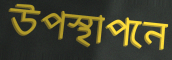
উপস্থাপনে